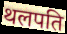
थलपति